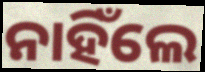
ନାହିଁଲେ